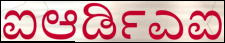
ಐಆರ್ಡಿಎಐ